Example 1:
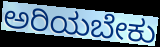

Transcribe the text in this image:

ಅರಿಯಬೇಕು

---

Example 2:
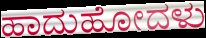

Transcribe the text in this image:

ಹಾದುಹೋದಳು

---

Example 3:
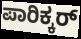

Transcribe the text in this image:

ಪಾರಿಕ್ಕರ್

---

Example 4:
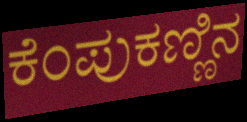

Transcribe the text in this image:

ಕೆಂಪುಕಣ್ಣಿನ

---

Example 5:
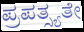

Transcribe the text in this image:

ಪ್ರಪತ್ಸ್ಯತೇ